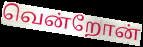
வென்றோன்